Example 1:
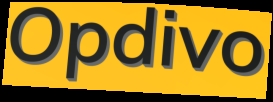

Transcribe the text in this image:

Opdivo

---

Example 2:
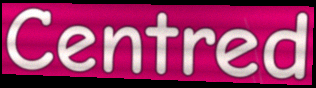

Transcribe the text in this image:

Centred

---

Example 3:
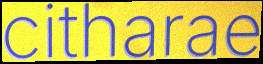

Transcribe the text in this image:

citharae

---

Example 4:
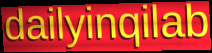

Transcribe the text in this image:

dailyinqilab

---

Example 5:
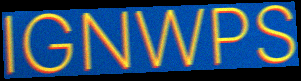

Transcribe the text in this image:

IGNWPS